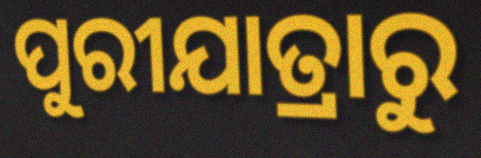
ପୁରୀଯାତ୍ରାରୁ